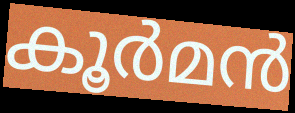
കൂർമൻ